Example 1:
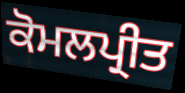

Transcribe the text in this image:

ਕੋਮਲਪ੍ਰੀਤ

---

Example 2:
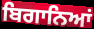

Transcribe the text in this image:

ਬਿਗਾਨਿਆਂ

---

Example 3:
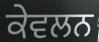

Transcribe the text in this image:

ਕੇਵਲਨ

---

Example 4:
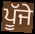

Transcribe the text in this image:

ਪੂੱਜੇ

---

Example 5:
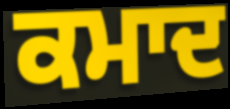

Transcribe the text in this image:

ਕਮਾਦ